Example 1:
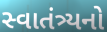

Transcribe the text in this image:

સ્વાતંત્ર્યનો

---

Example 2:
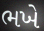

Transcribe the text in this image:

ભખે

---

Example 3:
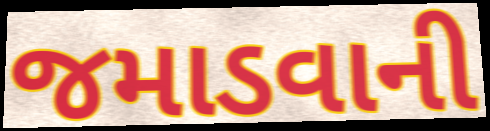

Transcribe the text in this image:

જમાડવાની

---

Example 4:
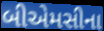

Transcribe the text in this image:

બીએમસીના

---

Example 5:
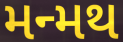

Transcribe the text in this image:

મન્મથ